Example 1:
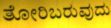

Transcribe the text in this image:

ತೋರಿಬರುವುದು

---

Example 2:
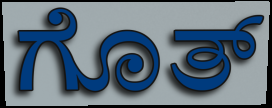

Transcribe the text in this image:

ಗೊತ್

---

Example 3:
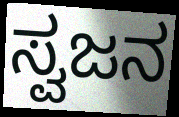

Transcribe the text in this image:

ಸ್ವಜನ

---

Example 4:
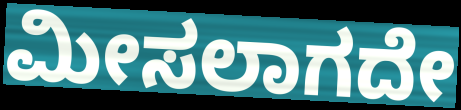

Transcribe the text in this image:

ಮೀಸಲಾಗದೇ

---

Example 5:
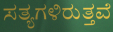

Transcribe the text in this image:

ಸತ್ಯಗಳಿರುತ್ತವೆ